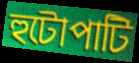
হুটোপাটি